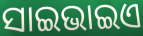
ସାଇଭାଇଏ